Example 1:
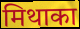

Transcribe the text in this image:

मिथाका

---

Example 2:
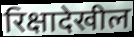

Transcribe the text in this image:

रिक्षादेखील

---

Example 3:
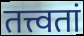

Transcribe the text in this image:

तत्त्वतां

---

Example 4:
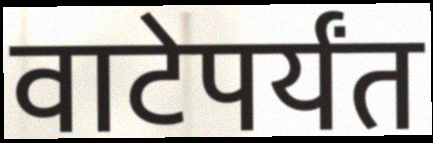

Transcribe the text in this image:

वाटेपर्यंत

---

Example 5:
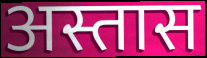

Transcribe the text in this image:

अस्तास